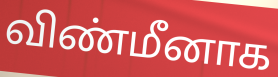
விண்மீனாக